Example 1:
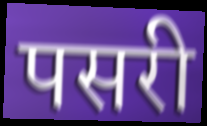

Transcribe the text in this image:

पसरी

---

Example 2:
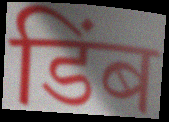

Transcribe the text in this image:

डिंब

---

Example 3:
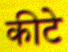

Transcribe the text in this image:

कीटे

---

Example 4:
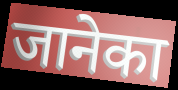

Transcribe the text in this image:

जानेका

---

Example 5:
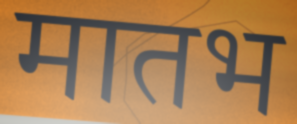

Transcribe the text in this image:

मातभ